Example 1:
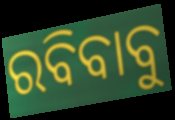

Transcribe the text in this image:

ରବିବାବୁ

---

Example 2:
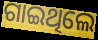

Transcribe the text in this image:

ଗାଇଥିଲେ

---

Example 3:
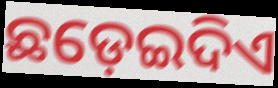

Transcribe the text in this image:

ଛଡ଼େଇଦିଏ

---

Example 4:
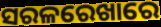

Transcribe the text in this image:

ସରଳରେଖାରେ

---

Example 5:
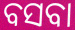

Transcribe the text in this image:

ବସବା